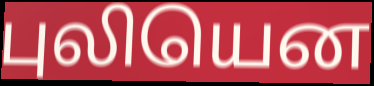
புலியென